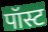
पॉस्ट